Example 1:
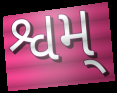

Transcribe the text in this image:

શ્વમ્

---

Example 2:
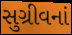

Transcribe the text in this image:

સુગ્રીવનાં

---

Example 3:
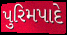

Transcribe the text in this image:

પુરિમપાદે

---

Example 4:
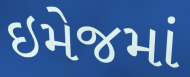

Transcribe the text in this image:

ઇમેજમાં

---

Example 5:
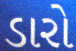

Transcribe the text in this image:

ડારો